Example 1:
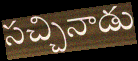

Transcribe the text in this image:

సచ్చినాడు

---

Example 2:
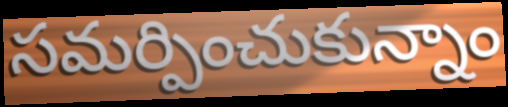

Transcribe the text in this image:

సమర్పించుకున్నాం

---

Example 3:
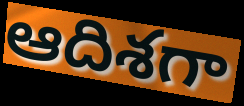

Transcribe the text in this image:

ఆదిశగా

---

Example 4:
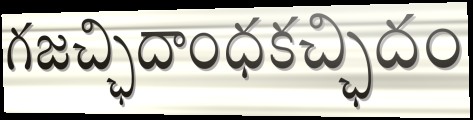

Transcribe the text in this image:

గజచ్ఛిదాంధకచ్ఛిదం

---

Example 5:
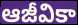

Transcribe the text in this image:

ఆజీవికా